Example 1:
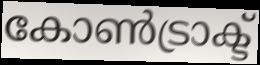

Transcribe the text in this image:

കോൺട്രാക്ട്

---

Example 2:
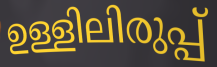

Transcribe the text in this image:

ഉള്ളിലിരുപ്പ്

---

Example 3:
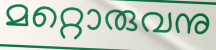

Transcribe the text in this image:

മറ്റൊരുവനു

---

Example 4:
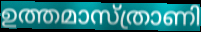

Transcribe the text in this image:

ഉത്തമാസ്ത്രാണി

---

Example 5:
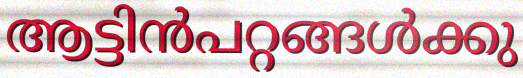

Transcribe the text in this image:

ആട്ടിൻപറ്റങ്ങൾക്കു